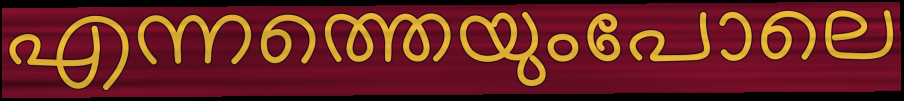
എന്നത്തെയുംപോലെ